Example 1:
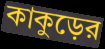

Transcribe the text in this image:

কাকুড়ের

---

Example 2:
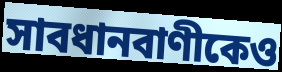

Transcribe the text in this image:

সাবধানবাণীকেও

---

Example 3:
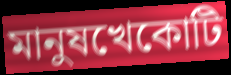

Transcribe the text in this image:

মানুষখেকোটি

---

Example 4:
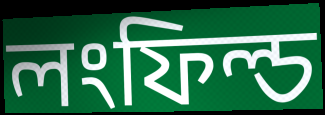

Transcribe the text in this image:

লংফিল্ড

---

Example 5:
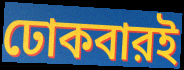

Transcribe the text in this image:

ঢোকবারই